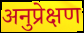
अनुप्रेक्षण